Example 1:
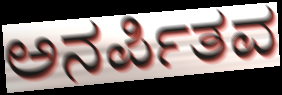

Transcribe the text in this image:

ಅನರ್ಪಿತವ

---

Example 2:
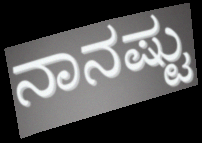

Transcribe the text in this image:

ನಾನಷ್ಟು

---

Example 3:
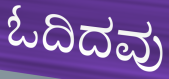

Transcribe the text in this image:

ಓದಿದವು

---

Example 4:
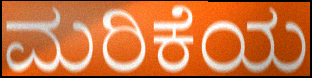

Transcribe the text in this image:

ಮರಿಕೆಯ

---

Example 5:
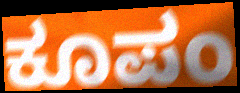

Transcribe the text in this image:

ಕೂಪಂ